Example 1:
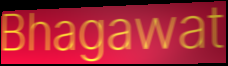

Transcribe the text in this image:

Bhagawat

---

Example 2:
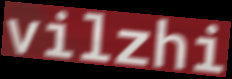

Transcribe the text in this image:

vilzhi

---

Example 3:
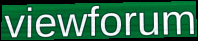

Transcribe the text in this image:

viewforum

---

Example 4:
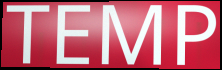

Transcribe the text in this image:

TEMP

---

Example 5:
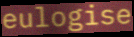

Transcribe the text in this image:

eulogise